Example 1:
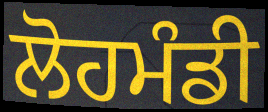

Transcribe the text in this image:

ਲੋਹਮੰਡੀ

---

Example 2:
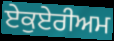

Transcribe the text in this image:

ਏਕੁਏਰੀਅਮ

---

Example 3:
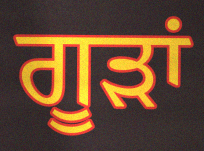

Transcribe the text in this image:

ਗੂੜਾਂ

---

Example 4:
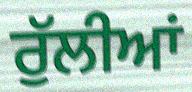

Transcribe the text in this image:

ਰੁੱਲੀਆਂ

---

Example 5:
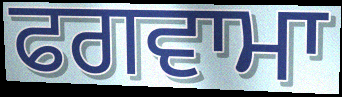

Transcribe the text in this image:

ਫਗਵਾਮਾ